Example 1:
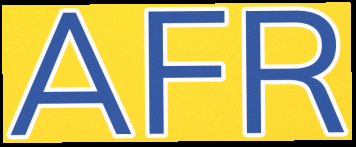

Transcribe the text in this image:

AFR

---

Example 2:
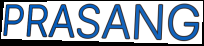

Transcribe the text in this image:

PRASANG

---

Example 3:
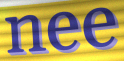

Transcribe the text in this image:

nee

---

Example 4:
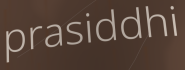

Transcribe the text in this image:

prasiddhi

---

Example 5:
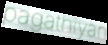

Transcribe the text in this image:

pagathiyan